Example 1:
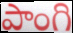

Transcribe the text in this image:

పాంగి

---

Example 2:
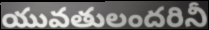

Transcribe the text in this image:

యువతులందరినీ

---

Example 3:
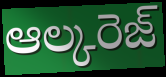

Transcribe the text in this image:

ఆల్కరెజ్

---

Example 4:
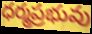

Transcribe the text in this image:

ధర్మప్రభువు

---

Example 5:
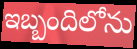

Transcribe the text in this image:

ఇబ్బందిలోను